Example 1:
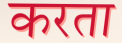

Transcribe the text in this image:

करता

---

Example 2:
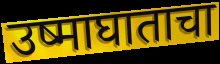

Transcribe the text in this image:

उष्माघाताचा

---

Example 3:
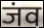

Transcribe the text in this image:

जंव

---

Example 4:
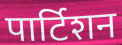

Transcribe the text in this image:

पार्टिशन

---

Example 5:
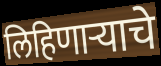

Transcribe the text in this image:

लिहिणाऱ्याचे